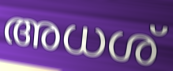
അധശ്